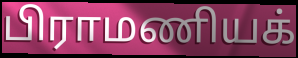
பிராமணியக்